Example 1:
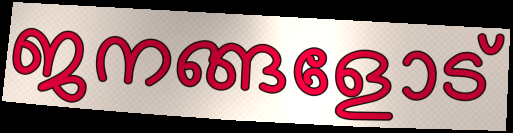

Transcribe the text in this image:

ജനങ്ങളോട്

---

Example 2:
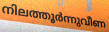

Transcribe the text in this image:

നിലത്തൂർന്നുവീണ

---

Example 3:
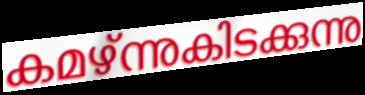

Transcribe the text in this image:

കമഴ്ന്നുകിടക്കുന്നു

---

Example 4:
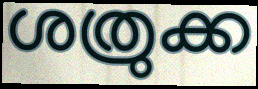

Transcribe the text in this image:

ശത്രുക്ക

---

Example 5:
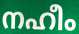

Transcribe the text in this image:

നഹീം